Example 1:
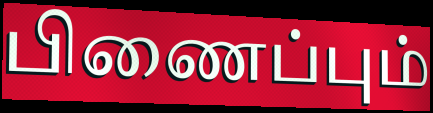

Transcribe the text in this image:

பிணைப்பும்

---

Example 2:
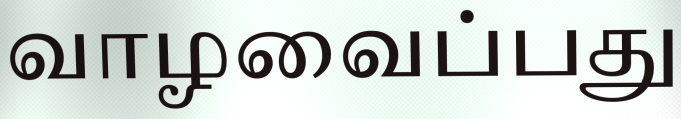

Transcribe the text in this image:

வாழவைப்பது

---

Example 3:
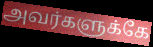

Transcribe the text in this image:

அவர்களுக்கே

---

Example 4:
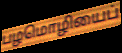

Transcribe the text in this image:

பழமொழியைப்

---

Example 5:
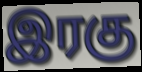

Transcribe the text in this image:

இரகு